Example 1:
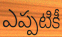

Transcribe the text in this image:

ఎప్పటికీ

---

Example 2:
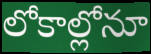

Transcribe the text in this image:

లోకాల్లోనూ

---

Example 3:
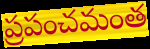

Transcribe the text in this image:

ప్రపంచమంత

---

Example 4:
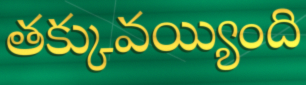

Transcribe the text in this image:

తక్కువయ్యింది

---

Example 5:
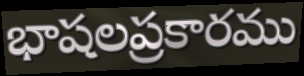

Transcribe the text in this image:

భాషలప్రకారము